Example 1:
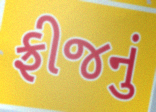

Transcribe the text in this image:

ફ્રીજનું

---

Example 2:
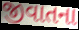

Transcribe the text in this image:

જીવાતના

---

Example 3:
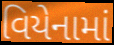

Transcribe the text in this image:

વિયેનામાં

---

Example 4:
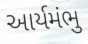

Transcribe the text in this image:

આર્યમંભુ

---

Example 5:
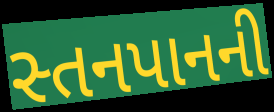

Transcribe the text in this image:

સ્તનપાનની